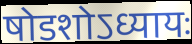
षोडशोऽध्यायः